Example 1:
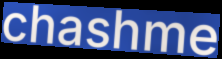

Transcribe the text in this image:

chashme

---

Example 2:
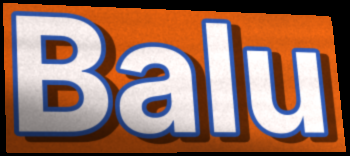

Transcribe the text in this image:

Balu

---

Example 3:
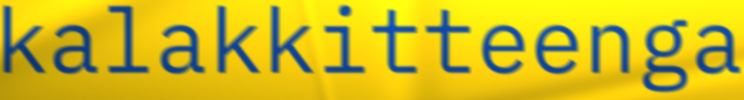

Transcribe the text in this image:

kalakkitteenga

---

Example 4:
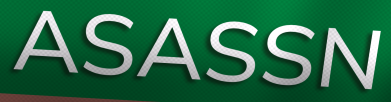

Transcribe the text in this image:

ASASSN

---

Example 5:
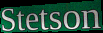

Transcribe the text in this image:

Stetson